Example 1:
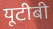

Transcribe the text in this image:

यूटीबी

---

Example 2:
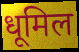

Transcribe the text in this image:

धूमिल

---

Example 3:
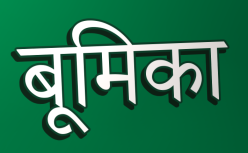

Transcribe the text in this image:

बूमिका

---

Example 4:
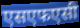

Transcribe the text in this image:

एसएफएसी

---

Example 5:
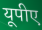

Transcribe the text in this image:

यूपीए